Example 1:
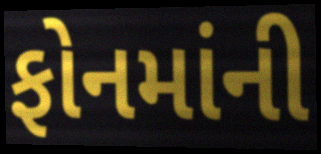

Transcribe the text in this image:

ફોનમાંની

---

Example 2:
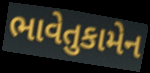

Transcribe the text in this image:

ભાવેતુકામેન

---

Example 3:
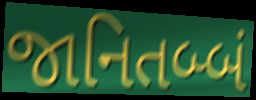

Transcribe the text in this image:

જાનિતબ્બં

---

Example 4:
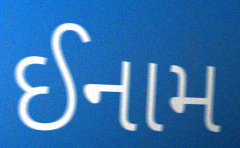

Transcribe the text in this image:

ઈનામ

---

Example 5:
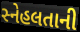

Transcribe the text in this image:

સ્નેહલતાની